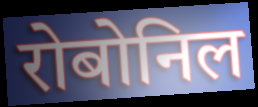
रोबोनिल